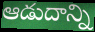
ఆడుదాన్ని